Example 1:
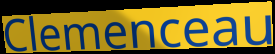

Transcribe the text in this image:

Clemenceau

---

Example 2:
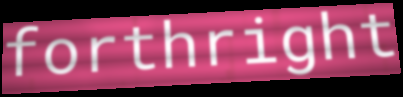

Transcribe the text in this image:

forthright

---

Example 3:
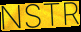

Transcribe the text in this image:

NSTR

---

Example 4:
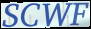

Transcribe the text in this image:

SCWF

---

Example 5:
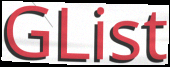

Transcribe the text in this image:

GList